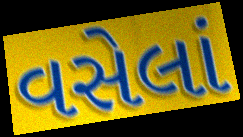
વસેલાં